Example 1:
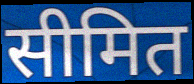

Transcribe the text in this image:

सीमित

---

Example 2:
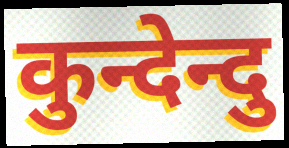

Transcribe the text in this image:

कुन्देन्दु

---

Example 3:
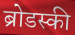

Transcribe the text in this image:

ब्रोडस्की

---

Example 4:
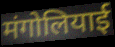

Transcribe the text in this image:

मंगोलियाई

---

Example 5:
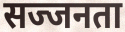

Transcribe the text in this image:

सज्जनता